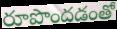
రూపొందడంతో